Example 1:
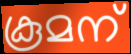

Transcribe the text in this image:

കൂമന്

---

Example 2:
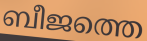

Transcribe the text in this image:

ബീജത്തെ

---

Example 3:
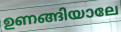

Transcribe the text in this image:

ഉണങ്ങിയാലേ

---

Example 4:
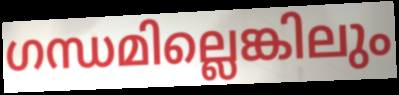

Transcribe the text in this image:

ഗന്ധമില്ലെങ്കിലും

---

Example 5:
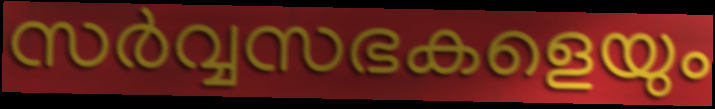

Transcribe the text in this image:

സർവ്വസഭകളെയും